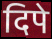
दिपे